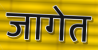
जागेत